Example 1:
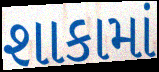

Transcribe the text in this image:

શાકામાં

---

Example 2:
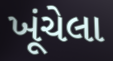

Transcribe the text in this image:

ખૂંચેલા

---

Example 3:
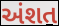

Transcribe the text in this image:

અંશત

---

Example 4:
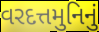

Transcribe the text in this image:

વરદત્તમુનિનું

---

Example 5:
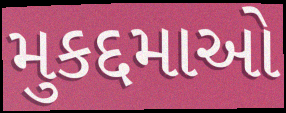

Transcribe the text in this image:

મુકદ્દમાઓ